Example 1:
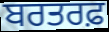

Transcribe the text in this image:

ਬਰਤਰਫ਼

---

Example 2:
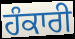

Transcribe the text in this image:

ਹੰਕਾਰੀ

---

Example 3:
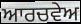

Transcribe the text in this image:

ਆਰਚਵੇਅ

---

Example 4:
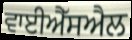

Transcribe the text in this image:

ਵਾਈਐੱਸਐਲ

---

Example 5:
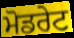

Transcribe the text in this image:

ਮੋਡਰੇਟ